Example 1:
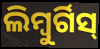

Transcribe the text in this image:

ଲିମ୍ବୁର୍ଗିସ୍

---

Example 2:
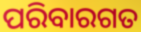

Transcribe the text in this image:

ପରିବାରଗତ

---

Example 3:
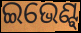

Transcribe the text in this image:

ଇଭେଣ୍ଟ୍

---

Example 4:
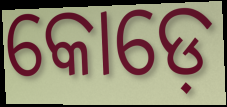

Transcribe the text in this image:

କୋଡ଼େ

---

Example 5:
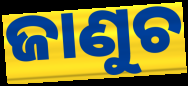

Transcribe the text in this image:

ଜାଣୁଚ